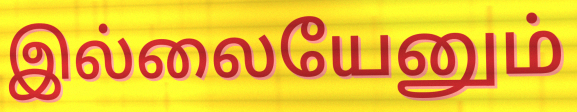
இல்லையேனும்